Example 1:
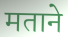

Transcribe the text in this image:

मताने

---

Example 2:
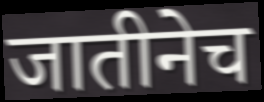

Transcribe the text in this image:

जातीनेच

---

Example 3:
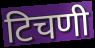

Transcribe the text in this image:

टिचणी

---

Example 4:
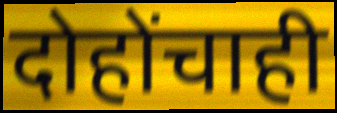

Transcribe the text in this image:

दोहोंचाही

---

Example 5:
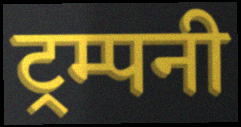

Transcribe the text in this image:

ट्रम्पनी